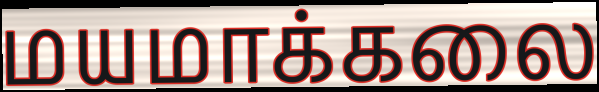
மயமாக்கலை